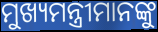
ମୁଖ୍ୟମନ୍ତ୍ରୀମାନଙ୍କୁ